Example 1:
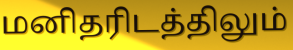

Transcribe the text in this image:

மனிதரிடத்திலும்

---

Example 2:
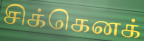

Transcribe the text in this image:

சிக்கெனக்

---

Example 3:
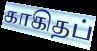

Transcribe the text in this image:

காகிதப்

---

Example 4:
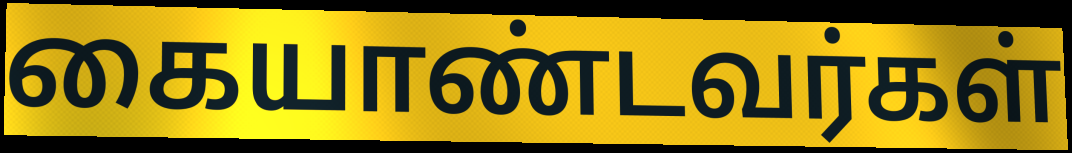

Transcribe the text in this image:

கையாண்டவர்கள்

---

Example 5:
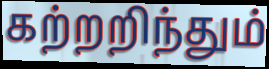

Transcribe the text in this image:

கற்றறிந்தும்